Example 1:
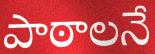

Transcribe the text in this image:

పాఠాలనే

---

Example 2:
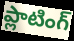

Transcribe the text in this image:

ప్లాటింగ్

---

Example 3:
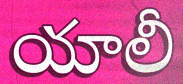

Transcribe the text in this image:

యాలీ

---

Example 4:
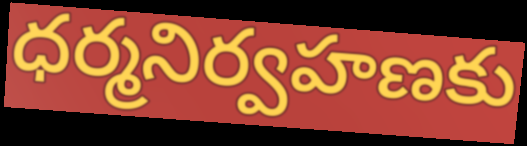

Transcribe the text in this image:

ధర్మనిర్వహణకు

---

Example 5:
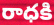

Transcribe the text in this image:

రాధకి